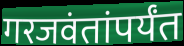
गरजवंतांपर्यंत